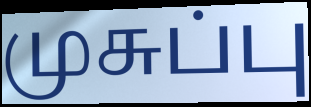
முசுப்பு